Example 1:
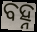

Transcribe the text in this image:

ବହ୍ନ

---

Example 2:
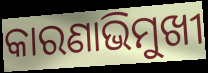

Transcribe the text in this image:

କାରଣାଭିମୁଖୀ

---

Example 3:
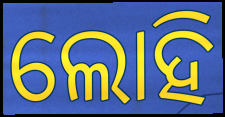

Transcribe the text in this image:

ଲୋହି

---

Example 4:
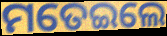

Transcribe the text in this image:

ମତେଇଲେ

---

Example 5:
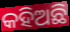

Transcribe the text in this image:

କହିଅଛି